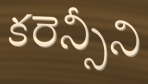
కరెన్సీని